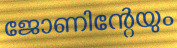
ജോണിന്റേയും